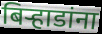
बिऱ्हाडांना